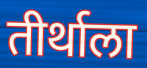
तीर्थाला